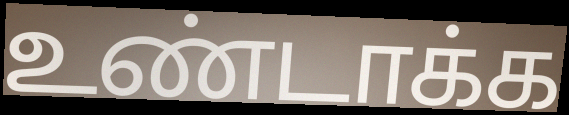
உண்டாக்க